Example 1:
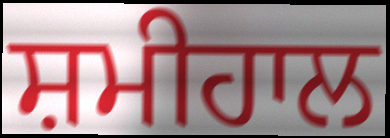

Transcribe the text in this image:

ਸ਼ਮੀਹਾਲ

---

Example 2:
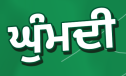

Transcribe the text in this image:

ਘੁੰਮਦੀ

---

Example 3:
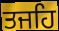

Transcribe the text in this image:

ਤਜਹਿ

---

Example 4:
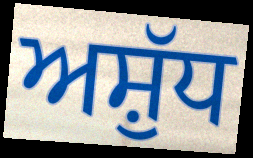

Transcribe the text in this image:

ਅਸ਼ੁੱਧ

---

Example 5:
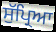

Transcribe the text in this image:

ਸੁੱਪ੍ਰਿਆ